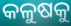
କଳୁଷକୁ